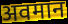
अवमान